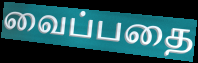
வைப்பதை